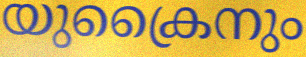
യുക്രൈനും